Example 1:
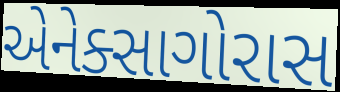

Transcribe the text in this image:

એનેક્સાગોરાસ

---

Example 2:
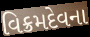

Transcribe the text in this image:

વિક્રમદેવના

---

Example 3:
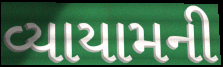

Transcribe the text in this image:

વ્યાયામની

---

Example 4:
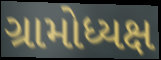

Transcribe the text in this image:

ગ્રામોધ્યક્ષ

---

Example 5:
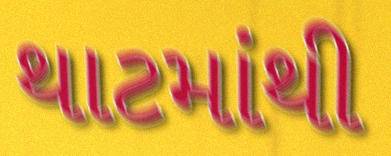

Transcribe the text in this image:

થાટમાંથી